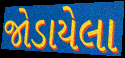
જોડાયેલા